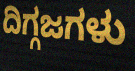
ದಿಗ್ಗಜಗಳು